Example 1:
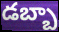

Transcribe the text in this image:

డబ్బా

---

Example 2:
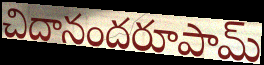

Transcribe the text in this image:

చిదానందరూపామ్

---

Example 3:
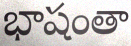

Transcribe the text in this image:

భాషంతా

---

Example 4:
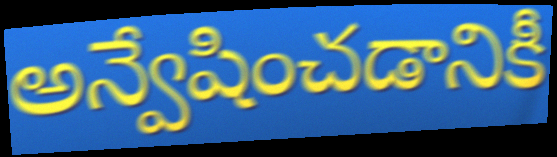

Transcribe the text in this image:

అన్వేషించడానికీ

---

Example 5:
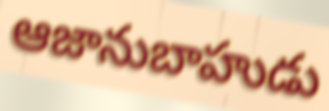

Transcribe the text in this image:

ఆజానుబాహుడు